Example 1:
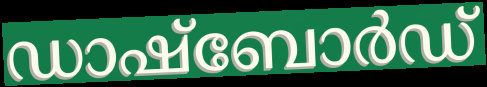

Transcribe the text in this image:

ഡാഷ്ബോർഡ്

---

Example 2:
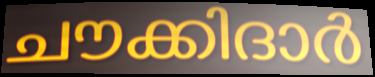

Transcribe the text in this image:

ചൗക്കിദാർ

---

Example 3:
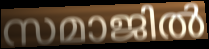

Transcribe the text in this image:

സമാജിൽ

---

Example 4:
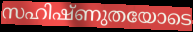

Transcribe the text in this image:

സഹിഷ്ണുതയോടെ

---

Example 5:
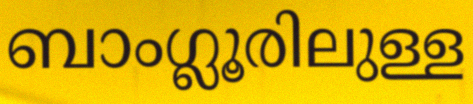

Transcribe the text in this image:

ബാംഗ്ലൂരിലുള്ള